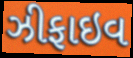
ઝીફાઇવ